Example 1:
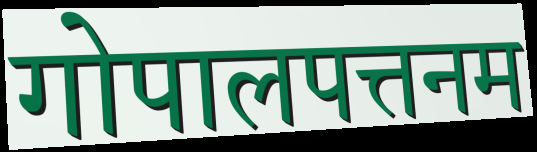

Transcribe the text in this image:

गोपालपत्तनम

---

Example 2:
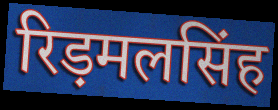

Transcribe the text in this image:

रिड़मलसिंह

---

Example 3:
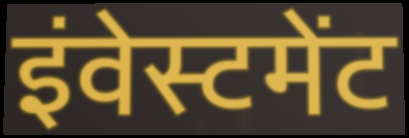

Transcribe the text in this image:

इंवेस्टमेंट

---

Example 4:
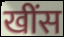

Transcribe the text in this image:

खींस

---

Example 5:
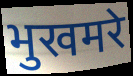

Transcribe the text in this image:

भुखमरे